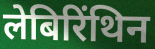
लेबिरिंथिन